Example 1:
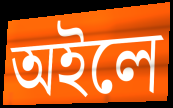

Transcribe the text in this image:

অইলে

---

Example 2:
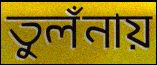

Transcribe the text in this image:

তুলঁনায়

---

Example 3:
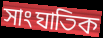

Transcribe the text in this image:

সাংঘাতিক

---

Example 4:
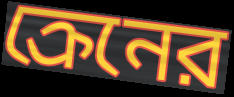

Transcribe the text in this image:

ক্রেনের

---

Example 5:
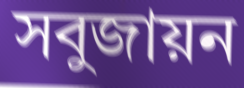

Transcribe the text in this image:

সবুজায়ন